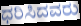
ಧರಿಸಿದವರು